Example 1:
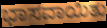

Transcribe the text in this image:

ಭಾಸವಾಯಿತು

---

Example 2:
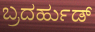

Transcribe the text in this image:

ಬ್ರದರ್ಹುಡ್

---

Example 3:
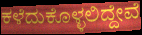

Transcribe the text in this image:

ಕಳೆದುಕೊಳ್ಳಲಿದ್ದೇವೆ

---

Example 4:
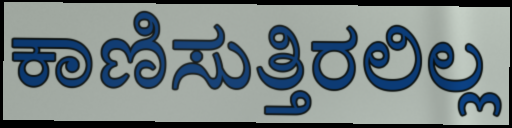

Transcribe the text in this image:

ಕಾಣಿಸುತ್ತಿರಲಿಲ್ಲ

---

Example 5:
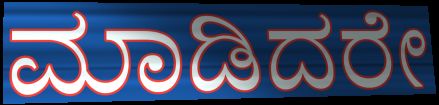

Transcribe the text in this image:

ಮಾಡಿದರೇ